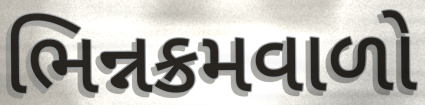
ભિન્નક્રમવાળો